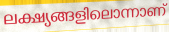
ലക്ഷ്യങ്ങളിലൊന്നാണ്